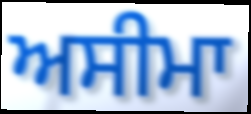
ਅਸੀਮਾ